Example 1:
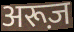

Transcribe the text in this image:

अरूज़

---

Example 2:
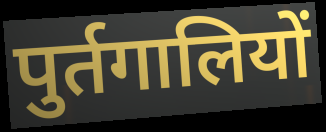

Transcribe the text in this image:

पुर्तगालियों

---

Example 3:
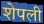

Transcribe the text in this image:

शेपली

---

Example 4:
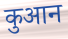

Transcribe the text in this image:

कुआन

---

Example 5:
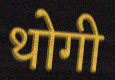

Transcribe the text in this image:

थोगी